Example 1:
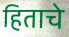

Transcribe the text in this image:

हिताचे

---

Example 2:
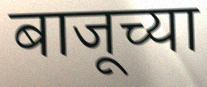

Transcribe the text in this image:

बाजूच्या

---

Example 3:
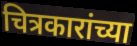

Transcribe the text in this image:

चित्रकारांच्या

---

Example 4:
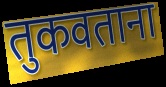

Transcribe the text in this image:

तुकवताना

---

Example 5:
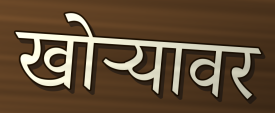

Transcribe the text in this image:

खोऱ्यावर